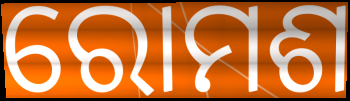
ରୋମଶ